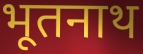
भूतनाथ